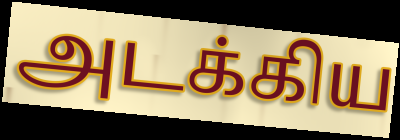
அடக்கிய